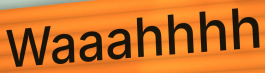
Waaahhhh